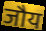
जौय